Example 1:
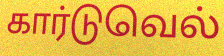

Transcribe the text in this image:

கார்டுவெல்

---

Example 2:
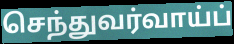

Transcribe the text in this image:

செந்துவர்வாய்ப்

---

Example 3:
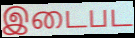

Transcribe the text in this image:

இடைபட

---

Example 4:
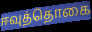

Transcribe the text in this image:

ஈவுத்தொகை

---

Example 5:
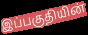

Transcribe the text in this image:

இப்பகுதியின்